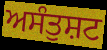
ਅਸੰਤੁਸ਼ਟ